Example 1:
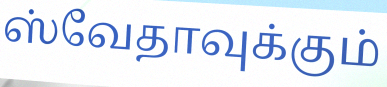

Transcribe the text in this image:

ஸ்வேதாவுக்கும்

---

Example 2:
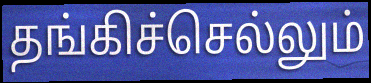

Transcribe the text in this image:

தங்கிச்செல்லும்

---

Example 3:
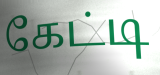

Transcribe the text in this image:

கேட்டி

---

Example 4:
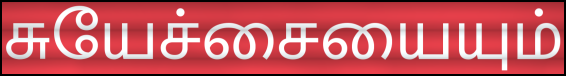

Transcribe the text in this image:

சுயேச்சையையும்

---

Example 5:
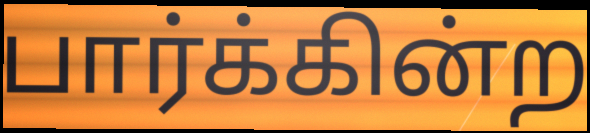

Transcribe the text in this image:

பார்க்கின்ற